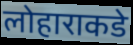
लोहाराकडे